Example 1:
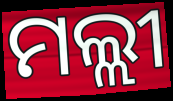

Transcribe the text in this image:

ମଲ୍ଲୀ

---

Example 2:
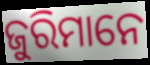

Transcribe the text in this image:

ଜୁରିମାନେ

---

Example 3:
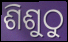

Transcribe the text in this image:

ଶିଶୁଠୁ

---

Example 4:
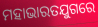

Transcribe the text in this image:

ମହାଭାରତଯୁଗରେ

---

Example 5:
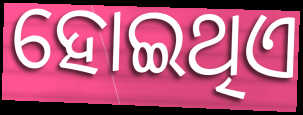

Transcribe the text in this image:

ହୋଇଥିଏ